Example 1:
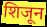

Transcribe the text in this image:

शिजून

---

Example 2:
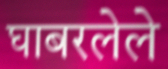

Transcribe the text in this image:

घाबरलेले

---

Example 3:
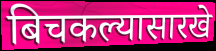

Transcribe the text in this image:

बिचकल्यासारखे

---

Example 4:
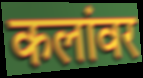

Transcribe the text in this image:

कलांवर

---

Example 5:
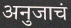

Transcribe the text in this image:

अनुजाचं